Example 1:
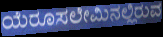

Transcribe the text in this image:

ಯೆರೂಸಲೇಮಿನಲ್ಲಿರುವ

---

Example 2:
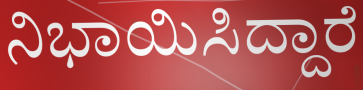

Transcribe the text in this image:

ನಿಭಾಯಿಸಿದ್ದಾರೆ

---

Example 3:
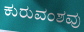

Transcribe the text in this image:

ಕುರುವಂಶವು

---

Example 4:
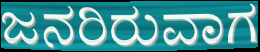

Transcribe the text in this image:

ಜನರಿರುವಾಗ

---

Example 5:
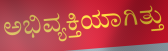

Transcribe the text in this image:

ಅಭಿವ್ಯಕ್ತಿಯಾಗಿತ್ತು